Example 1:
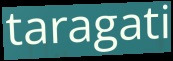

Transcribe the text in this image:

taragati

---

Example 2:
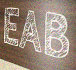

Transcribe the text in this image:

EAB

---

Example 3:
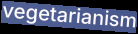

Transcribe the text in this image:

vegetarianism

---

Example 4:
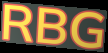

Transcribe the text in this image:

RBG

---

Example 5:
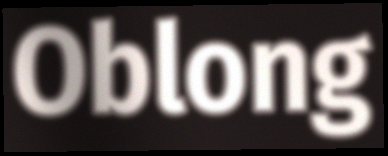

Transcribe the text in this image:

Oblong